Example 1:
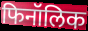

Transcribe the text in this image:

फिनॉलिक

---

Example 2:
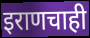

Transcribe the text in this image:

इराणचाही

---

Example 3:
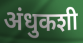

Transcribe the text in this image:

अंधुकशी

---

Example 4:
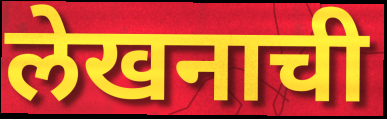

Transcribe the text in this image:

लेखनाची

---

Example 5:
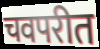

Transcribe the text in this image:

चवपरीत